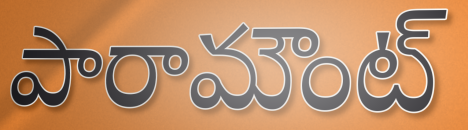
పారామౌంట్